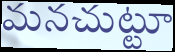
మనచుట్టూ